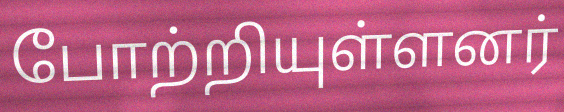
போற்றியுள்ளனர்